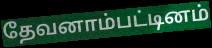
தேவனாம்பட்டினம்